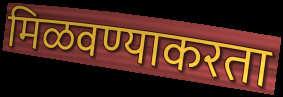
मिळवण्याकरता